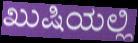
ಖುಷಿಯಲ್ಲಿ